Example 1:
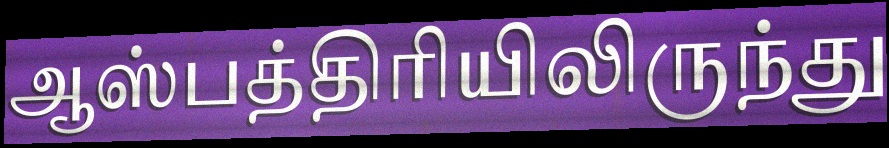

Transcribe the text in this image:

ஆஸ்பத்திரியிலிருந்து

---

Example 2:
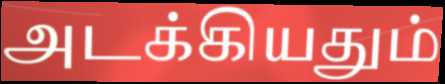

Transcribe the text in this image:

அடக்கியதும்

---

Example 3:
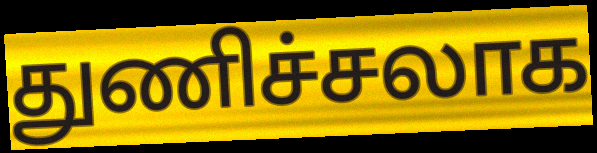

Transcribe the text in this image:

துணிச்சலாக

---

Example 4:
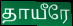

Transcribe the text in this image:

தாயீரே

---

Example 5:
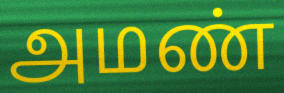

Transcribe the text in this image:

அமண்